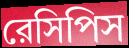
রেসিপিস